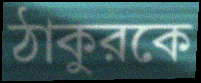
ঠাকুরকে